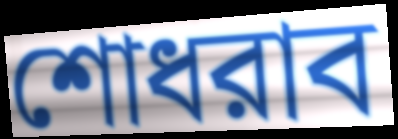
শোধরাব